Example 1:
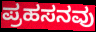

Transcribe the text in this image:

ಪ್ರಹಸನವು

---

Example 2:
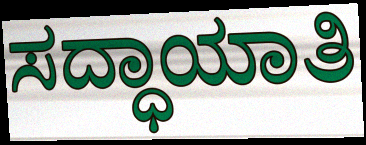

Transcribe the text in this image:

ಸದ್ಧಾಯಾತಿ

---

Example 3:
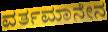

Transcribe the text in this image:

ವರ್ತಮಾನೇನ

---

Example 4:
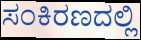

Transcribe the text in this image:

ಸಂಕಿರಣದಲ್ಲಿ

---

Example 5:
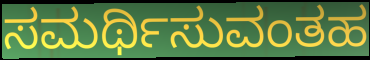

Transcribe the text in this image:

ಸಮರ್ಥಿಸುವಂತಹ